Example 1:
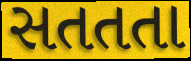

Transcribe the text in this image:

સતતતા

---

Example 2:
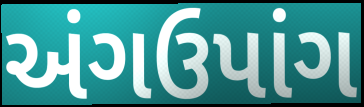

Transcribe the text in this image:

અંગઉપાંગ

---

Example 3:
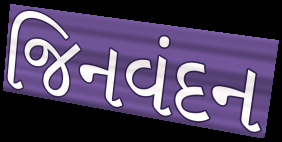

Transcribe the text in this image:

જિનવંદન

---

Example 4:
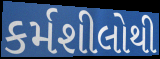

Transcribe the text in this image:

કર્મશીલોથી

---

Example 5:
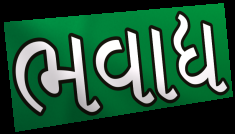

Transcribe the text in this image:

ભવાદ્ય